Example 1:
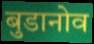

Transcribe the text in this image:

बुडानोव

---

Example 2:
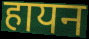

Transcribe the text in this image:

हायन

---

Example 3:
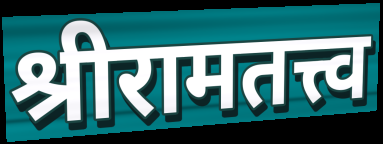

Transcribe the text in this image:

श्रीरामतत्त्व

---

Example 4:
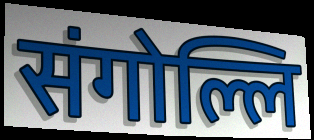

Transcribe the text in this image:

संगोल्लि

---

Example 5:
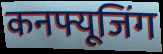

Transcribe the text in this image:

कनफ्यूजिंग